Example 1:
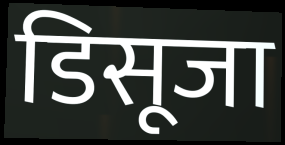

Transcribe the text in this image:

डिसूजा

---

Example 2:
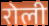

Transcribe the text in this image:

रोली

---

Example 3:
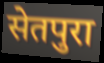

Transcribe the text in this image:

सेतपुरा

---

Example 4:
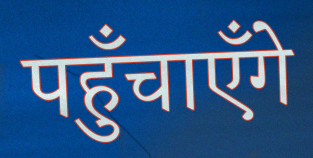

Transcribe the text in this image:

पहुँचाएँगे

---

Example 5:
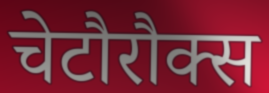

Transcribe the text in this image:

चेटौरौक्स